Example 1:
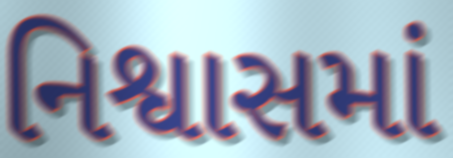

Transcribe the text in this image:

નિશ્વાસમાં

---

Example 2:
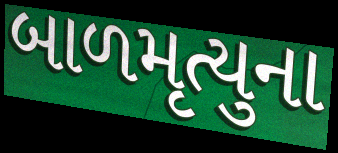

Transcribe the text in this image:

બાળમૃત્યુના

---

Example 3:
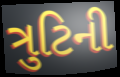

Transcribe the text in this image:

ત્રુટિની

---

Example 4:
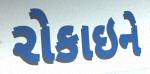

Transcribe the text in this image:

રોકાઇને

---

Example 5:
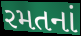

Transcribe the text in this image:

રમતનાં